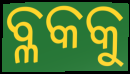
ବ୍ଳକକୁ